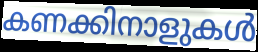
കണക്കിനാളുകൾ